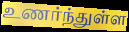
உணர்ந்துள்ள